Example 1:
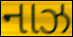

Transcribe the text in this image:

નાઝ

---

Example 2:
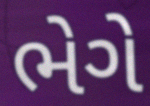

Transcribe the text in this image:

ભેગે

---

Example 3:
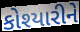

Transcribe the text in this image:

કોશ્યારીને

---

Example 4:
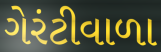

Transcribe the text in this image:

ગેરંટીવાળા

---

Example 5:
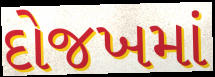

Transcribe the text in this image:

દોજખમાં